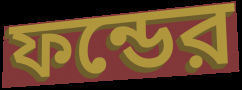
ফন্ডের